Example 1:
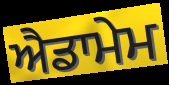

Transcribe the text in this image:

ਐਡਾਮੇਮ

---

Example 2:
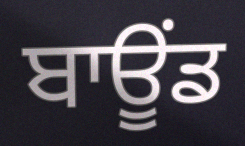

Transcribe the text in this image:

ਬਾਊਂਡ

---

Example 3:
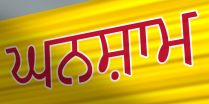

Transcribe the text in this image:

ਘਨਸ਼ਾਮ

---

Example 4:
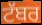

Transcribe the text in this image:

ਟੱਬਰ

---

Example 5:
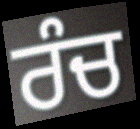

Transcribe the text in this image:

ਰੰਚ